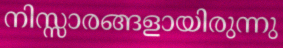
നിസ്സാരങ്ങളായിരുന്നു